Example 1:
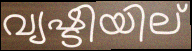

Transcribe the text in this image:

വ്യഷ്ടിയില്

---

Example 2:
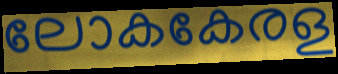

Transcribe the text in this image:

ലോകകേരള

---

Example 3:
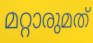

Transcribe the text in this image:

മറ്റാരുമത്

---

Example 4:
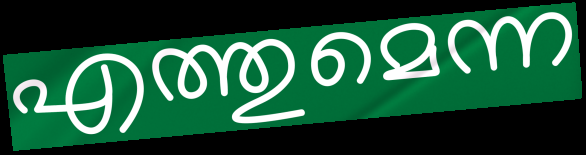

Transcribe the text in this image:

എത്തുമെന്ന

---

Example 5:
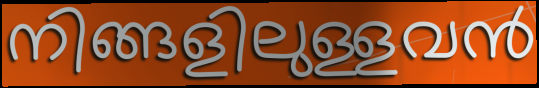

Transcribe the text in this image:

നിങ്ങളിലുള്ളവൻ